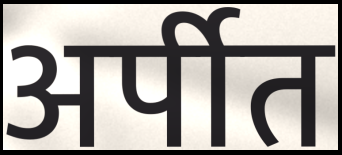
अर्पीत